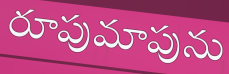
రూపుమాపును